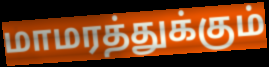
மாமரத்துக்கும்